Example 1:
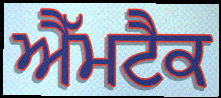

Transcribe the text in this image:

ਐੱਮਟੈਕ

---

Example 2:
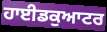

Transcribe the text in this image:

ਹਾਈਡਕੁਆਟਰ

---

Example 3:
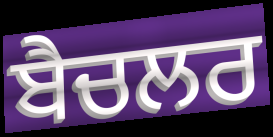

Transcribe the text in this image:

ਬੈਚਲਰ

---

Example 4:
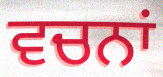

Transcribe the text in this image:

ਵਚਨਾਂ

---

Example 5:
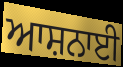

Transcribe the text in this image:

ਆਸ਼ਨਾਈ